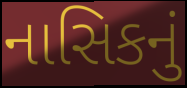
નાસિકનું